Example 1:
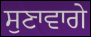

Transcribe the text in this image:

ਸੁਣਾਵਾਗੇ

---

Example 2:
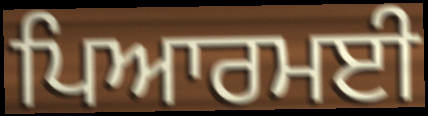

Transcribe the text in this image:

ਪਿਆਰਮਈ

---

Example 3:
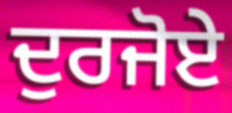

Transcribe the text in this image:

ਦੁਰਜੋਏ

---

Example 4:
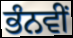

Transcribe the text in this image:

ਭੰਨਵੀਂ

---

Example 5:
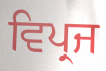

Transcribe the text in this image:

ਵਿਪ੍ਰਜ